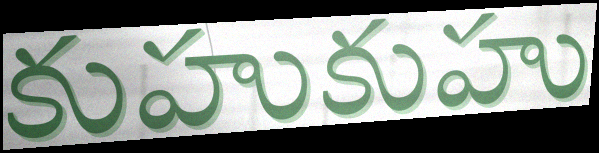
కుహుకుహు